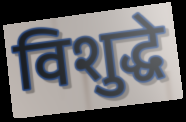
विशुद्धे